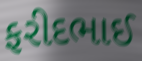
ફરીદભાઈ